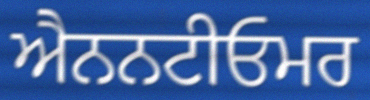
ਐਨਨਟੀਓਮਰ